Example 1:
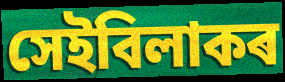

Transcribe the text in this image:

সেইবিলাকৰ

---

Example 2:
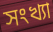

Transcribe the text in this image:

সংখ্যা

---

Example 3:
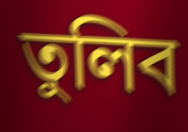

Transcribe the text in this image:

তুলিব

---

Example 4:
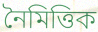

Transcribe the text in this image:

নৈমিত্তিক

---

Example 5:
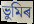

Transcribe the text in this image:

ভুমিৰ